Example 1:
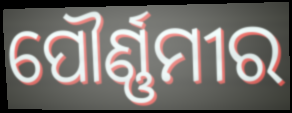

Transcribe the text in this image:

ପୌର୍ଣ୍ଣମୀର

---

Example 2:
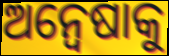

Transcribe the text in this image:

ଅନ୍ୱେଷାକୁ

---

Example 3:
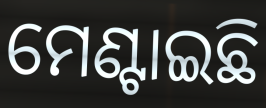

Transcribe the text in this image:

ମେଣ୍ଟାଇଛି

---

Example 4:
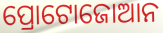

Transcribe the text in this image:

ପ୍ରୋଟୋଜୋଆନ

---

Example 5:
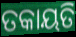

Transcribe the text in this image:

ତକାୟତି